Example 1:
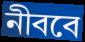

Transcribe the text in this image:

নীববে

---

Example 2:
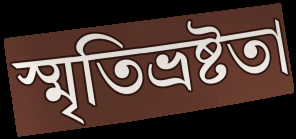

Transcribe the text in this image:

স্মৃতিভ্রষ্টতা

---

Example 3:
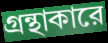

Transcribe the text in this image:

গ্রন্থাকারে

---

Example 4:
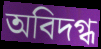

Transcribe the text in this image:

অবিদগ্ধ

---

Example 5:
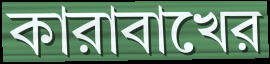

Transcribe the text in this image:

কারাবাখের